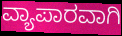
ವ್ಯಾಪಾರವಾಗಿ